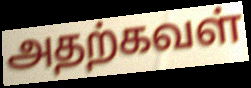
அதற்கவள்